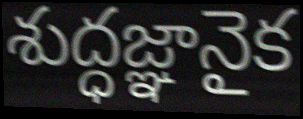
శుద్ధజ్ఞానైక